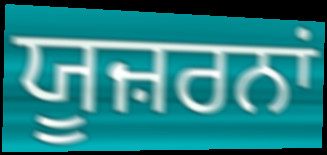
ਯੂਜ਼ਰਨਾਂ